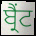
ਬ੍ਰੈਂਟ